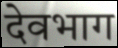
देवभाग